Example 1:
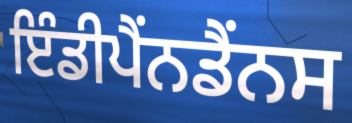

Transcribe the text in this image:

ਇੰਡੀਪੈਂਨਡੈਂਨਸ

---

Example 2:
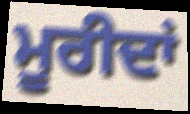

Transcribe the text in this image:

ਮੂਰੀਦਾਂ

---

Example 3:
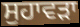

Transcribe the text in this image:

ਸੁਹਾਵੜਾ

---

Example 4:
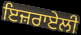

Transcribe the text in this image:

ਇਜ਼ਰਾਏਲੀ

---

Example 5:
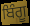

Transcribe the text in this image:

ਬਿੰਗੂ